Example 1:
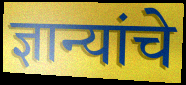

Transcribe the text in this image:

ज्ञान्यांचे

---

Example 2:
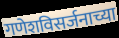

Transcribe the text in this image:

गणेशविसर्जनाच्या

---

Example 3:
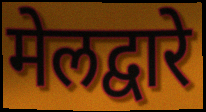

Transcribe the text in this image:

मेलद्वारे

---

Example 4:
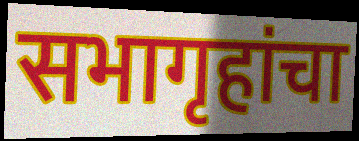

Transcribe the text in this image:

सभागृहांचा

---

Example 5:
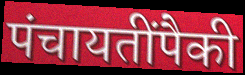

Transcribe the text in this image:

पंचायतींपैकी